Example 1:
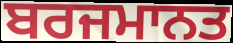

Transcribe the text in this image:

ਬਰਜਮਾਨਤ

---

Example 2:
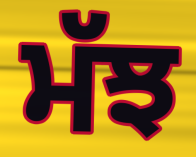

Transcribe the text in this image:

ਮੱਝ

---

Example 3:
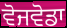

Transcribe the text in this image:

ਵੋਜਵੋਡਾ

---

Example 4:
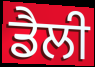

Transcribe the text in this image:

ਡੈਲੀ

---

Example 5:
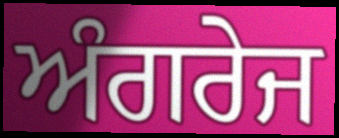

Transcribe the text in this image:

ਅੰਗਰੇਜ